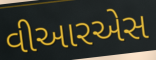
વીઆરએસ